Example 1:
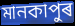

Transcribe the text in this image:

মানকাপুৰ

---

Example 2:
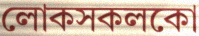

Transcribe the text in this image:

লোকসকলকো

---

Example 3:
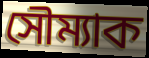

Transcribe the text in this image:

সৌম্যাক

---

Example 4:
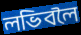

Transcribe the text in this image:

লভিবলৈ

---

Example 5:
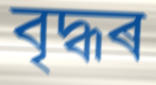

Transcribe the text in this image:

বৃদ্ধৰ